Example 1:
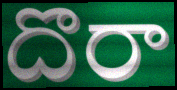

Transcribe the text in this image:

దొరా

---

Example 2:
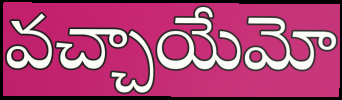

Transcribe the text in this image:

వచ్చాయేమో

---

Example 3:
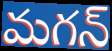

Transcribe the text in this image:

మగన్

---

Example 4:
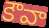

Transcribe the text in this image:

కౌవా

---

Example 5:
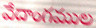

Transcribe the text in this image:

వేదాంగముల